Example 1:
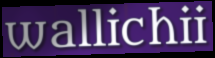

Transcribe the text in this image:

wallichii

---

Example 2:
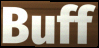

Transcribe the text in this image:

Buff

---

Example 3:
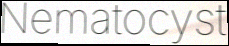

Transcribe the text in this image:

Nematocyst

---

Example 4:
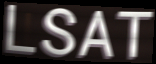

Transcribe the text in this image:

LSAT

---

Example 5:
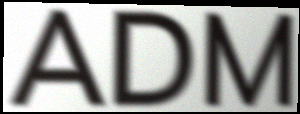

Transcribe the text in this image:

ADM